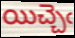
యిచ్చెఁ